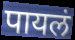
पायलं